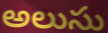
అలుసు